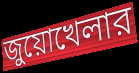
জুয়োখেলার